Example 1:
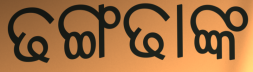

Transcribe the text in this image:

ଢଙ୍ଗଢାଙ୍କ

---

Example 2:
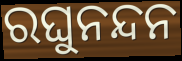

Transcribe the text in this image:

ରଘୁନନ୍ଦନ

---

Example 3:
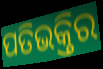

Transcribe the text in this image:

ପତିଭକ୍ତିର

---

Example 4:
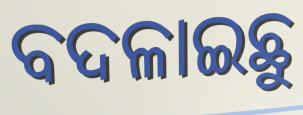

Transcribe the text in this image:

ବଦଳାଇଛୁ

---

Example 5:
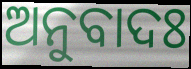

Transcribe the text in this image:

ଅନୁବାଦଃ